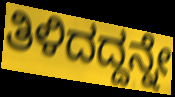
ತಿಳಿದದ್ದನ್ನೇ